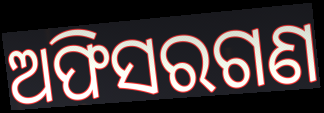
ଅଫିସରଗଣ